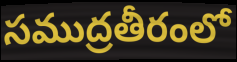
సముద్రతీరంలో